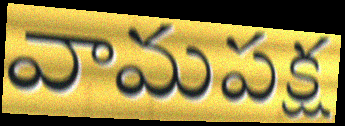
వామపక్ష